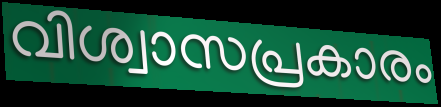
വിശ്വാസപ്രകാരം